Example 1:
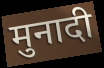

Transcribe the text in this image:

मुनादी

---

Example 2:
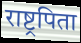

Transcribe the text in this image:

राष्ट्रपिता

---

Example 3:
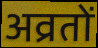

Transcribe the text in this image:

अव्रतों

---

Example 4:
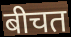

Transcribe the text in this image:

बीचत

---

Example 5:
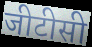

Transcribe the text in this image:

जीटीसी